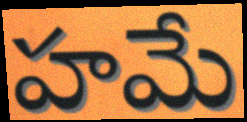
హమే